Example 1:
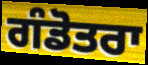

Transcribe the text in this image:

ਗੰਡੋਤਰਾ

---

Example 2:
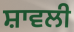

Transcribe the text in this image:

ਸ਼ਾਵਲੀ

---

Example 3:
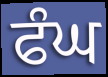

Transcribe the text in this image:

ਫੰਘ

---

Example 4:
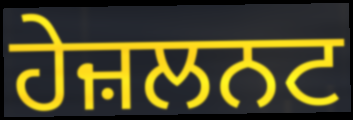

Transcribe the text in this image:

ਹੇਜ਼ਲਨਟ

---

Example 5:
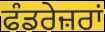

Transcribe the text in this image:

ਫੰਡਰੇਜ਼ਰਾਂ